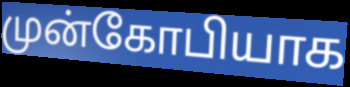
முன்கோபியாக